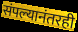
संपल्यानंतरही